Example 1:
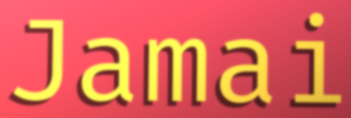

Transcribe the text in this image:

Jamai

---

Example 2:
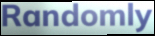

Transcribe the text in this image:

Randomly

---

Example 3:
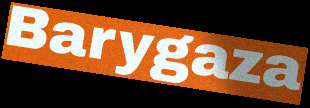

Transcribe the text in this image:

Barygaza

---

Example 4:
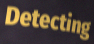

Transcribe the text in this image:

Detecting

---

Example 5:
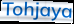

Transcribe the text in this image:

Tohjaya